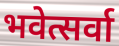
भवेत्सर्वा